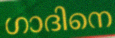
ഗാദിനെ